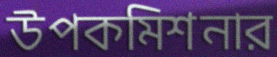
উপকমিশনার